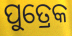
ପୁତ୍ରେକ